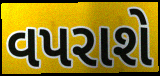
વપરાશે